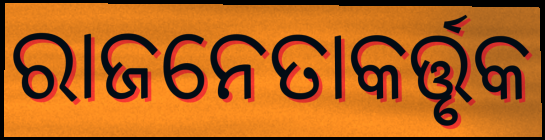
ରାଜନେତାକର୍ତ୍ତୃକ